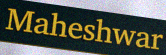
Maheshwar